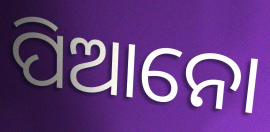
ପିଆନୋ